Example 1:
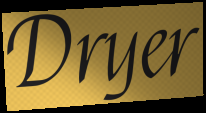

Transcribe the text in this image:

Dryer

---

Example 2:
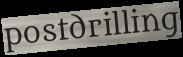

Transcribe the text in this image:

postdrilling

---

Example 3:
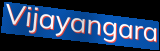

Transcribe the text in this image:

Vijayangara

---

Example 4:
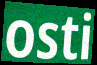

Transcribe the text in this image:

osti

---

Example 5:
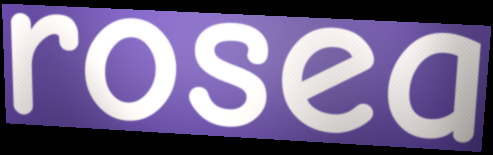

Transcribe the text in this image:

rosea